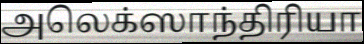
அலெக்ஸாந்திரியா